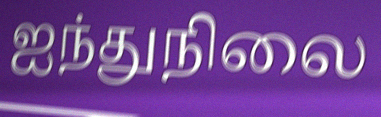
ஐந்துநிலை